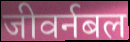
जीवर्नबल